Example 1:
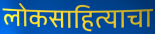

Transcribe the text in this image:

लोकसाहित्याचा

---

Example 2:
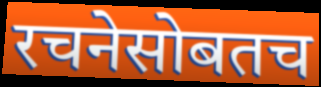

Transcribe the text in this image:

रचनेसोबतच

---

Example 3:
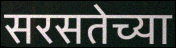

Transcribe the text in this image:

सरसतेच्या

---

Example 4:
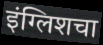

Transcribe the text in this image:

इंग्लिशचा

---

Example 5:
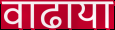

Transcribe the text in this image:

वाढाया